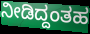
ನೀಡಿದ್ದಂತಹ